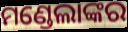
ମଣ୍ଡେଲାଙ୍କର